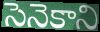
సెనెకాని